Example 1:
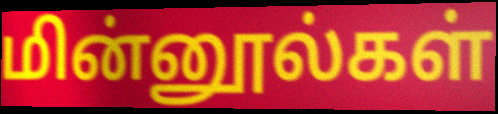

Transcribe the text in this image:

மின்னூல்கள்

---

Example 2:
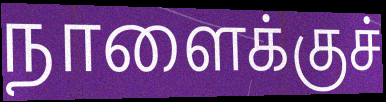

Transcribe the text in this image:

நாளைக்குச்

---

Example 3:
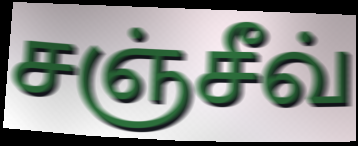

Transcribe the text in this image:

சஞ்சீவ்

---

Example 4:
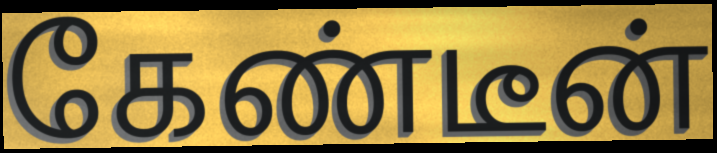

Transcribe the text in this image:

கேண்டீன்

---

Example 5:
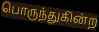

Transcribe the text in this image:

பொருந்துகின்ற